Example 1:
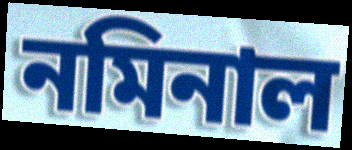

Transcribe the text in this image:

নমিনাল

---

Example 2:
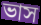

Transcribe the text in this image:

ভাস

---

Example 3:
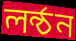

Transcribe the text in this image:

লন্ঠন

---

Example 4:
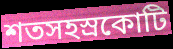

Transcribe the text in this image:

শতসহস্রকোটি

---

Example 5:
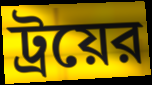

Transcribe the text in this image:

ট্রয়ের